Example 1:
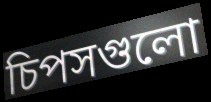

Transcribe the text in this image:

চিপসগুলো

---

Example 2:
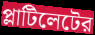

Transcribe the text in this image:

প্লাটিলেটের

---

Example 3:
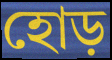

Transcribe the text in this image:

হোড়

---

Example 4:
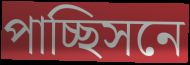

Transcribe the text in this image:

পাচ্ছিসনে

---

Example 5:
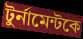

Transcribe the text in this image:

টুর্নামেন্টকে